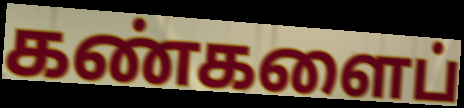
கண்களைப்